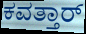
ಕವತ್ತಾರ್